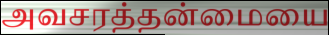
அவசரத்தன்மையை